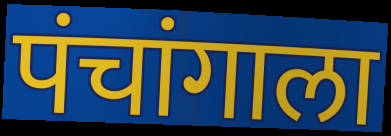
पंचांगाला